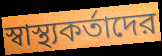
স্বাস্থ্যকর্তাদের